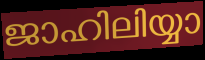
ജാഹിലിയ്യാ